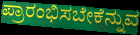
ಪ್ರಾರಂಭಿಸಬೇಕೆನ್ನುವ